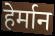
हेर्मान